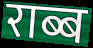
राब्ब